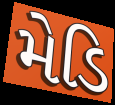
મેડિ